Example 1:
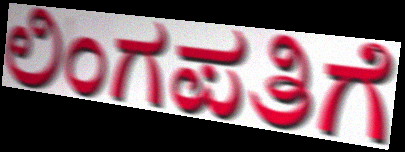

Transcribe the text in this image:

ಲಿಂಗಪತಿಗೆ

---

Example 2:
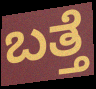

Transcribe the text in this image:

ಬತ್ತೆ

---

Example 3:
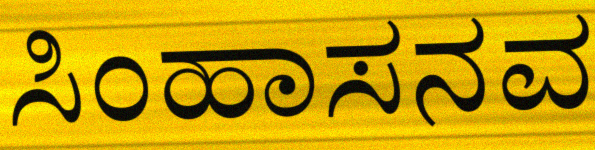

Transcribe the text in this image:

ಸಿಂಹಾಸನವ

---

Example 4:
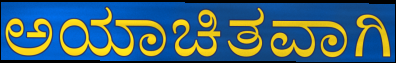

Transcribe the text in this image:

ಅಯಾಚಿತವಾಗಿ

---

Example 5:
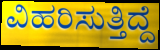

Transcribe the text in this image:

ವಿಹರಿಸುತ್ತಿದ್ದೆ